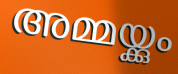
അമ്മയ്ക്കും